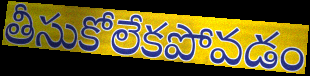
తీసుకోలేకపోవడం